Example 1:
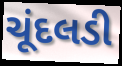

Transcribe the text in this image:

ચૂંદલડી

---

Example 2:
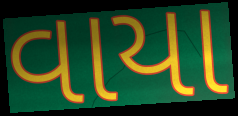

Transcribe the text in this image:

વાયા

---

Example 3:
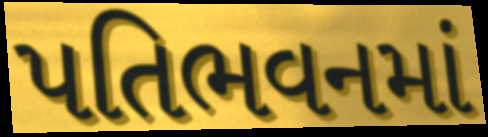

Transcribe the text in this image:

પતિભવનમાં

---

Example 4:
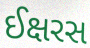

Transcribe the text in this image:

ઈક્ષરસ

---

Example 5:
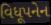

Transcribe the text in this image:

વિધૂપનેન